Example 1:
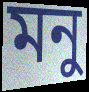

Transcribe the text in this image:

মনু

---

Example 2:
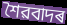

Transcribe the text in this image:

শৈৱবাদৰ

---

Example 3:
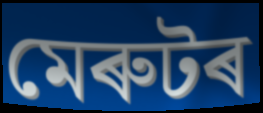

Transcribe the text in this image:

মেৰুটৰ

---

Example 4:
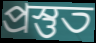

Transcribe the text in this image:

প্ৰস্তুত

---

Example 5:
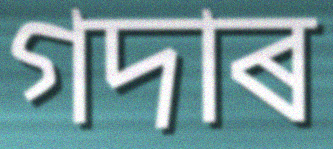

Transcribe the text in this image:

গদাৰ